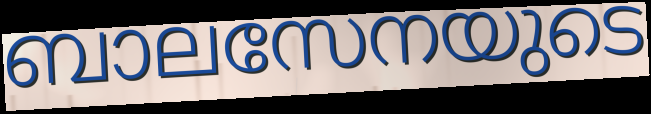
ബാലസേനയുടെ